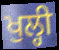
ਖੁਲ੍ਹੀ